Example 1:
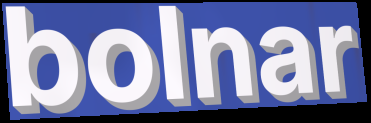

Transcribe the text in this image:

bolnar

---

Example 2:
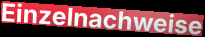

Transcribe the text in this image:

Einzelnachweise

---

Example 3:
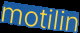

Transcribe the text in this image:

motilin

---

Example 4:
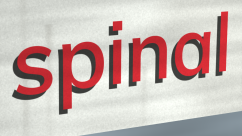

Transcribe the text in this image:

spinal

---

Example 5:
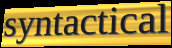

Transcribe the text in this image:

syntactical